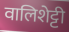
वालिशेट्टी